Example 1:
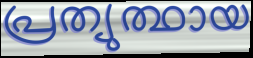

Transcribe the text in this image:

പ്രത്യുത്ഥായ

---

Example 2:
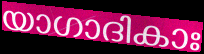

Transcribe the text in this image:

യാഗാദികാഃ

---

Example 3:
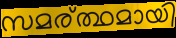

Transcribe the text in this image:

സമര്ത്ഥമായി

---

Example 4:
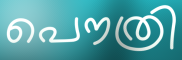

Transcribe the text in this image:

പൌത്രി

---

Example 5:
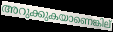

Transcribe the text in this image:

അറുക്കുകയാണെങ്കില്